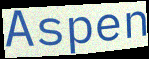
Aspen